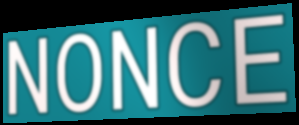
NONCE